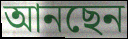
আনছেন